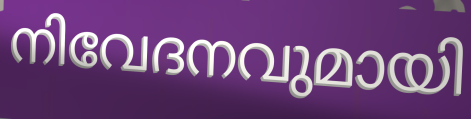
നിവേദനവുമായി